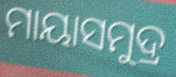
ମାୟାସମୁଦ୍ର